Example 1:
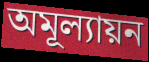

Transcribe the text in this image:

অমূল্যায়ন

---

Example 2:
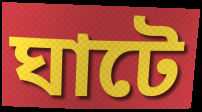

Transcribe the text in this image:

ঘাটে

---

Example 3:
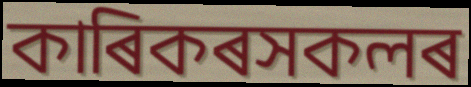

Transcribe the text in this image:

কাৰিকৰসকলৰ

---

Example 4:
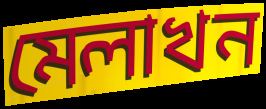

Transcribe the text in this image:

মেলাখন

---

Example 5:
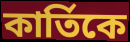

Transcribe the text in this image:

কাৰ্তিকে